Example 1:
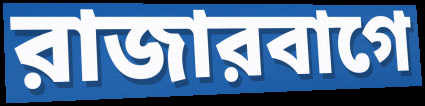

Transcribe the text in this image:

রাজারবাগে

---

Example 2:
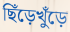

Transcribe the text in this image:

ছিঁড়েখুঁড়ে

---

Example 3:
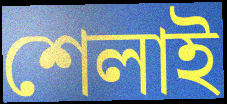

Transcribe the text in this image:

শেলাই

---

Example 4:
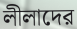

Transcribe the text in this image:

লীলাদের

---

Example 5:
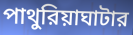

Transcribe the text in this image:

পাথুরিয়াঘাটার